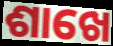
ଶାଖେ